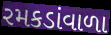
રમકડાંવાળા